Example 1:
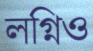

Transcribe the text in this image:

লগ্নিও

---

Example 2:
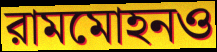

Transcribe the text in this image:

রামমোহনও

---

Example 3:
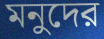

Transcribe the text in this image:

মনুদের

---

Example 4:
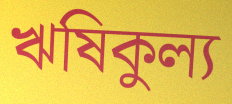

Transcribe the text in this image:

ঋষিকুল্য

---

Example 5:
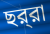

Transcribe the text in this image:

ছর্‌রা